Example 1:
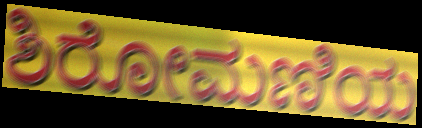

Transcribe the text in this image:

ಶಿರೋಮಣಿಯ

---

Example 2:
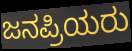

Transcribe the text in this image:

ಜನಪ್ರಿಯರು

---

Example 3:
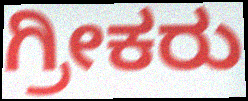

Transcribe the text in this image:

ಗ್ರೀಕರು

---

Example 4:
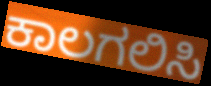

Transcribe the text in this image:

ಕಾಲಗಲಿಸಿ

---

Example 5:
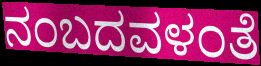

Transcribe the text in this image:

ನಂಬದವಳಂತೆ